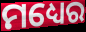
ମଧ୍ୟେର